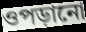
ওপড়ানো